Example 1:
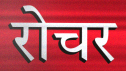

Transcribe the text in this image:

रोचर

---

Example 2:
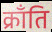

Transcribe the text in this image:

क्राँति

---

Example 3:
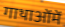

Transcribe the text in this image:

गाथाओंमें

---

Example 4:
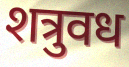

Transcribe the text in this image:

शत्रुवध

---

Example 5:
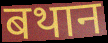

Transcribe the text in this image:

बथान